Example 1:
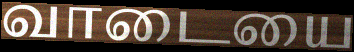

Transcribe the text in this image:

வாடையை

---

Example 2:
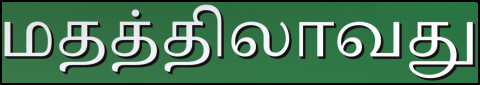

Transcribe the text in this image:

மதத்திலாவது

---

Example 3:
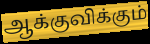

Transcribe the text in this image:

ஆக்குவிக்கும்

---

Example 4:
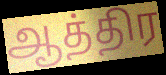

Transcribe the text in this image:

ஆத்திர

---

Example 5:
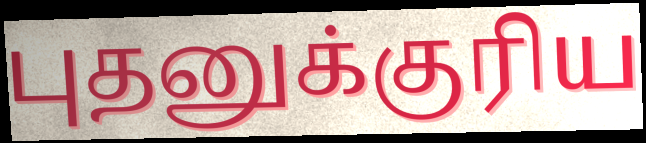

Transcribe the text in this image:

புதனுக்குரிய